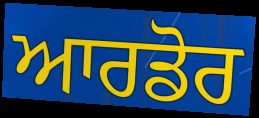
ਆਰਡੋਰ